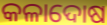
କଳାଦୋଷ